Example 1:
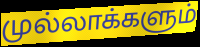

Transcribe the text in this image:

முல்லாக்களும்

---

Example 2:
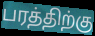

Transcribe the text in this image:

பரத்திற்கு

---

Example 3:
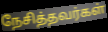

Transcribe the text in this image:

நேசித்தவர்கள்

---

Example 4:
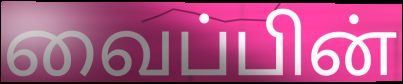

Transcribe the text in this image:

வைப்பின்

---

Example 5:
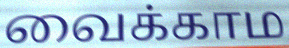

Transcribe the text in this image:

வைக்காம